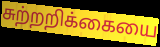
சுற்றறிக்கையை